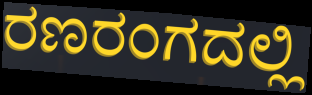
ರಣರಂಗದಲ್ಲಿ